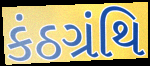
કંઠગ્રંથિ